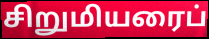
சிறுமியரைப்